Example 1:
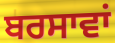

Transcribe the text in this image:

ਬਰਸਾਵਾਂ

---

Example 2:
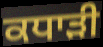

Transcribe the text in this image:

ਕਧਾੜੀ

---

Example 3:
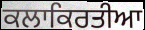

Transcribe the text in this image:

ਕਲਾਕਿਰਤੀਆ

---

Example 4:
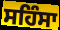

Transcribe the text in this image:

ਸਹਿੰਸਾ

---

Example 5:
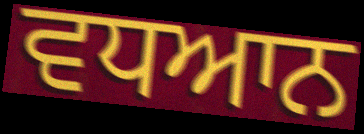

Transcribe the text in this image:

ਵਧਆਨ